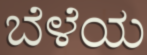
ಬೆಳೆಯ